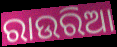
ରାଉରିଆ